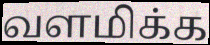
வளமிக்க